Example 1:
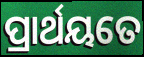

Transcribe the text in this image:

ପ୍ରାର୍ଥୟତେ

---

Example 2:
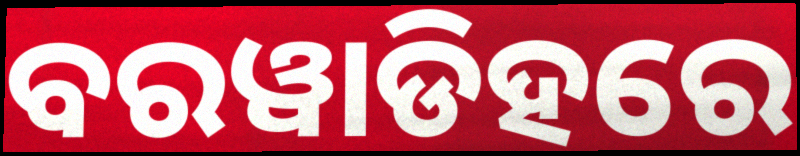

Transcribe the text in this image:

ବରୱାଡିହରେ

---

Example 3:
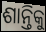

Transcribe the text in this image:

ଶାନ୍ତିକୁ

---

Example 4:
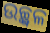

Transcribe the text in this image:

ଉଚ୍ଛ୍ୱଳ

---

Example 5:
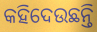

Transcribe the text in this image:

କହିଦେଉଛନ୍ତି